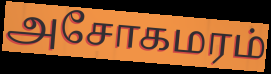
அசோகமரம்